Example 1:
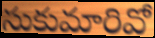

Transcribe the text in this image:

సుకుమారివో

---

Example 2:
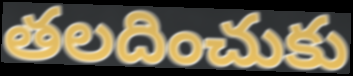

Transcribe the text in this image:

తలదించుకు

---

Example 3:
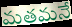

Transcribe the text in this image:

మతమనే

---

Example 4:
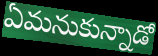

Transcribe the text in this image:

ఏమనుకున్నాడో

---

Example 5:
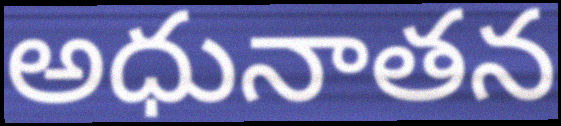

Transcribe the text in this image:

అధునాతన